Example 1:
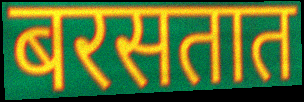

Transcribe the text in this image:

बरसतात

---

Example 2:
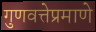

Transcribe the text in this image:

गुणवत्तेप्रमाणे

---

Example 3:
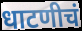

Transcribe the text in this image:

धाटणीचं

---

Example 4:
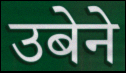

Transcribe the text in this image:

उबेने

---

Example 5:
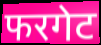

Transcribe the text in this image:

फरगेट